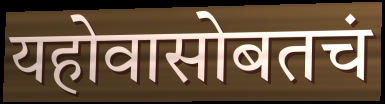
यहोवासोबतचं